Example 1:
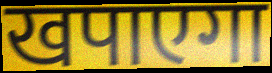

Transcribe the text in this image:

खपाएगा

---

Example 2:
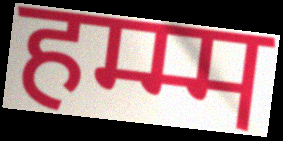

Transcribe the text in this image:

हम्म्म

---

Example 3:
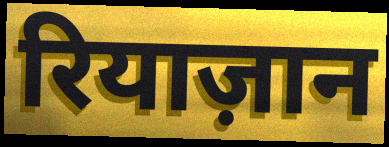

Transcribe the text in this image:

रियाज़ान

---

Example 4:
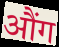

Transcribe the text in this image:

औंग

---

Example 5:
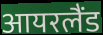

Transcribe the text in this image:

आयरलैंड